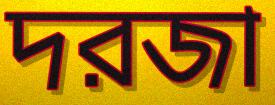
দরজা